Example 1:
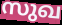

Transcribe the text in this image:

സുഖ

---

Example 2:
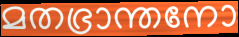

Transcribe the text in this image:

മതഭ്രാന്തനോ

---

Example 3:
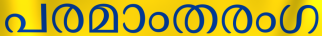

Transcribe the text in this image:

പരമാംതരംഗ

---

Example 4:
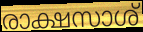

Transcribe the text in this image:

രാക്ഷസാശ്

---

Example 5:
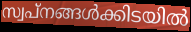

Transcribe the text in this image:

സ്വപ്നങ്ങൾക്കിടയിൽ